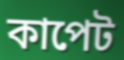
কাপেট